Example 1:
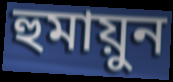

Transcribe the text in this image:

হুমায়ুন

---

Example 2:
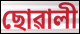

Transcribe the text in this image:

ছোৱালী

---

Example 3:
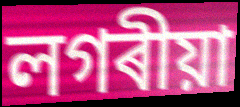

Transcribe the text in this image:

লগৰীয়া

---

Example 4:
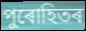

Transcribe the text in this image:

পুৰোহিতৰ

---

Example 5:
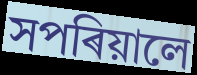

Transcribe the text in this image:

সপৰিয়ালে